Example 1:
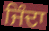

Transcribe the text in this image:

ਜਿੰਦਾ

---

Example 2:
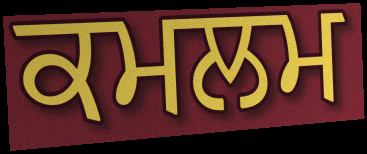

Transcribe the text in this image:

ਕਮਲਮ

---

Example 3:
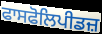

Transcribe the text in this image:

ਫਾਸਫੋਲਿਪੀਡਜ਼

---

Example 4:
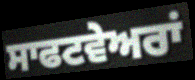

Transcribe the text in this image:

ਸਾਫਟਵੇਅਰਾਂ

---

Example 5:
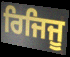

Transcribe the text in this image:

ਰਿਜਿਜੂ